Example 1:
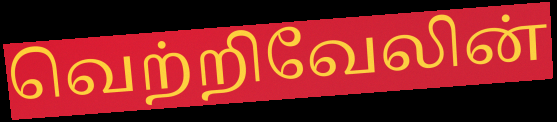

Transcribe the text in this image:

வெற்றிவேலின்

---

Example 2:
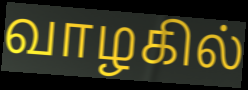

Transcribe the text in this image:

வாழகில்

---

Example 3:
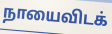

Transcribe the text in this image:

நாயைவிடக்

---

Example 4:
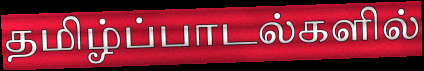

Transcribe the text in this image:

தமிழ்ப்பாடல்களில்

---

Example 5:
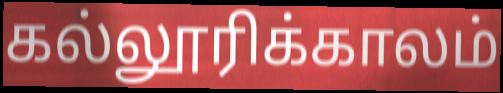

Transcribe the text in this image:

கல்லூரிக்காலம்